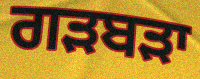
ਗੜਬੜਾ